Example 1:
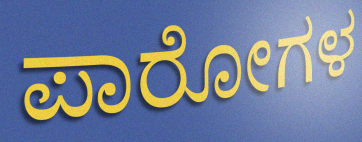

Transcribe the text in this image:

ಪಾರೋಗಳ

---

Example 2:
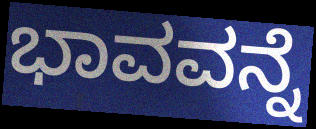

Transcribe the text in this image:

ಭಾವವನ್ನೆ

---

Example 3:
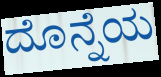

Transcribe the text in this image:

ದೊನ್ನೆಯ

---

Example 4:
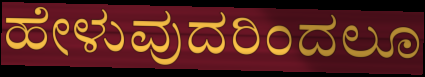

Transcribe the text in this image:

ಹೇಳುವುದರಿಂದಲೂ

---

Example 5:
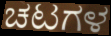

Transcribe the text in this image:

ಚಟಗಳ